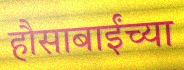
हौसाबाईंच्या